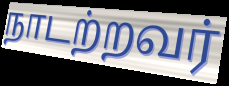
நாடற்றவர்